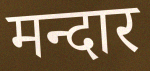
मन्दार